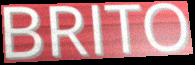
BRITO